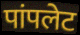
पांपलेट